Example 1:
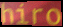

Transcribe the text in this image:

hiro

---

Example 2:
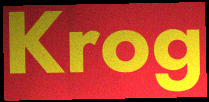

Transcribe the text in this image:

Krog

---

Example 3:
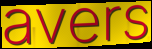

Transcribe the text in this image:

avers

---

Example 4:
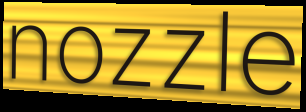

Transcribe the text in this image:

nozzle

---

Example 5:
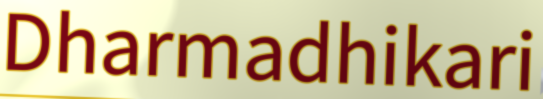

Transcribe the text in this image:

Dharmadhikari